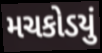
મચકોડયું